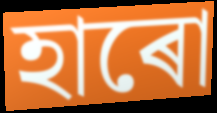
হাৰো